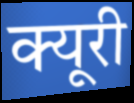
क्यूरी